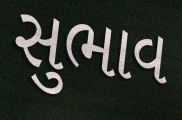
સુભાવ